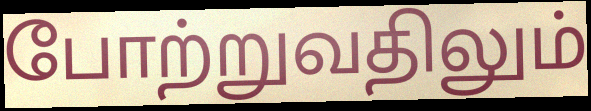
போற்றுவதிலும்